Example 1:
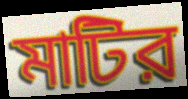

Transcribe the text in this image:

মাটির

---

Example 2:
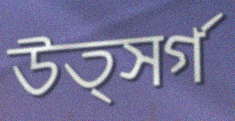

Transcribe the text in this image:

উত্সর্গ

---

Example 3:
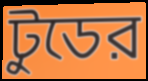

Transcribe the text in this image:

টুডের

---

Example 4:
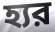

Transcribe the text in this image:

হ্যর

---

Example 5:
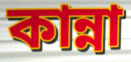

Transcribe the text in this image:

কান্না